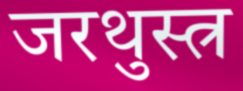
जरथुस्‍त्र